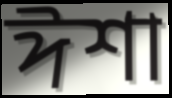
ঈশা